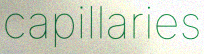
capillaries